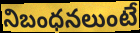
నిబంధనలుంటే